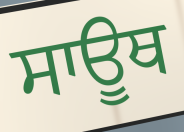
ਸਾਊਥ